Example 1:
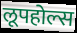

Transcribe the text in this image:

लूपहोल्स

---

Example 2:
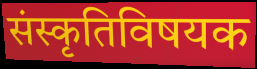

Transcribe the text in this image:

संस्कृतिविषयक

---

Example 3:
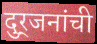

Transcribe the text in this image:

दुर्जनांची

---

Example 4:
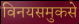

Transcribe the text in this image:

विनयसमुकसे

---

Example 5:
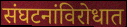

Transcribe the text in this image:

संघटनांविरोधात